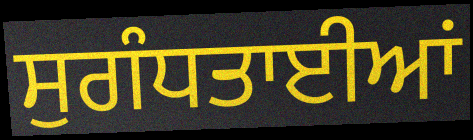
ਸੁਗੰਧਤਾਈਆਂ